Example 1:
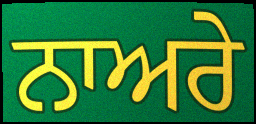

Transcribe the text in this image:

ਨਾਅਰੇ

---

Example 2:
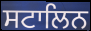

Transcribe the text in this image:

ਸਟਾਲਿਨ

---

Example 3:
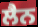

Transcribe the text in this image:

ਲੈਨ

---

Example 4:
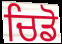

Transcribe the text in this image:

ਚਿਡੋ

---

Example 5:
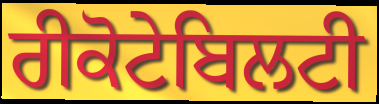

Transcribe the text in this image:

ਰੀਕੋਟੇਬਿਲਟੀ